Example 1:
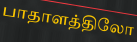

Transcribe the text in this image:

பாதாளத்திலோ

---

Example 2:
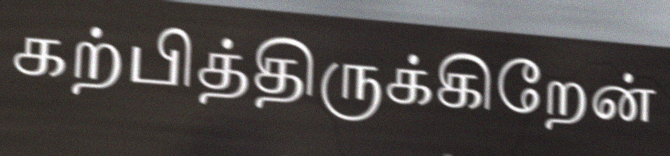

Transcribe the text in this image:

கற்பித்திருக்கிறேன்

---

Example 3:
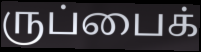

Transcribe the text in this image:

ருப்பைக்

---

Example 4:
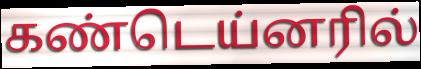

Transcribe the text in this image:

கண்டெய்னரில்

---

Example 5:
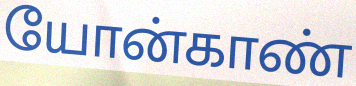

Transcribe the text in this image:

யோன்காண்